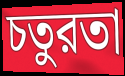
চতুরতা